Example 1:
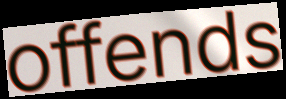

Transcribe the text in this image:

offends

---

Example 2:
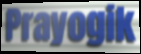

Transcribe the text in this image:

Prayogik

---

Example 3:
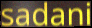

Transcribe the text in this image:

sadani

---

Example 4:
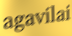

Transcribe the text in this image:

agavilai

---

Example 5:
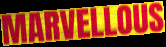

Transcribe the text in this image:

MARVELLOUS